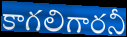
కాగలిగారనీ